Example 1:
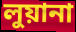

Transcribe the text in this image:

লুয়ানা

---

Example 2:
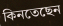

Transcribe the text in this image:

কিনতেছেন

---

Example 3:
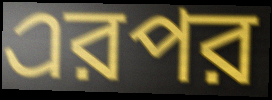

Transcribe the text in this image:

এরপর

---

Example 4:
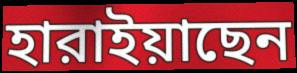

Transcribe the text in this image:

হারাইয়াছেন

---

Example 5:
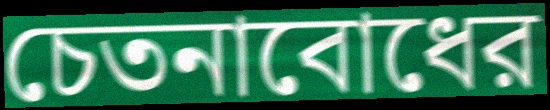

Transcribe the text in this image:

চেতনাবোধের